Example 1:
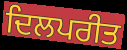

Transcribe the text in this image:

ਦਿਲਪਰੀਤ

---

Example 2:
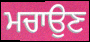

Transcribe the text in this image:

ਮਚਾਉਣ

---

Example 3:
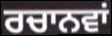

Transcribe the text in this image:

ਰਚਾਨਵਾਂ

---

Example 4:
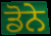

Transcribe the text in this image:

ਡੋਨੇ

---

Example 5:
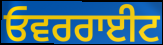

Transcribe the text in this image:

ਓਵਰਰਾਈਟ